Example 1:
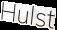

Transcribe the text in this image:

Hulst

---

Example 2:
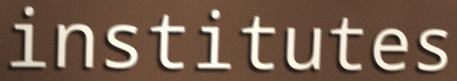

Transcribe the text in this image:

institutes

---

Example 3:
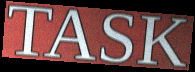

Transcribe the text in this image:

TASK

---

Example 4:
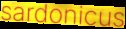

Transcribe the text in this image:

sardonicus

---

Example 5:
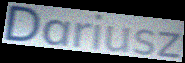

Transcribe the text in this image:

Dariusz